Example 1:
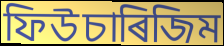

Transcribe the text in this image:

ফিউচাৰিজিম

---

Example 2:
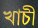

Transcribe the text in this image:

খাচী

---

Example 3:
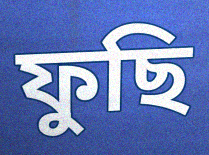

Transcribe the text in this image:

ফুছি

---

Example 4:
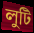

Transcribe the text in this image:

লুটি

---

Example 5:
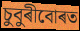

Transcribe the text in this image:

চুবুৰীবোৰত